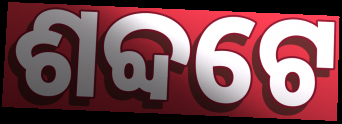
ଶବ୍ଦଟେ